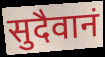
सुदैवानं